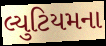
લ્યુટિયમના